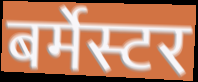
बर्मेस्टर